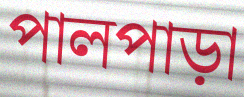
পালপাড়া